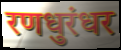
रणधुरंधर